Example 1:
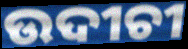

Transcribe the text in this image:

ଉଦୀଚୀ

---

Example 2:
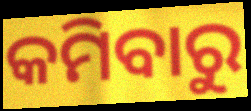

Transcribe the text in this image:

କମିବାରୁ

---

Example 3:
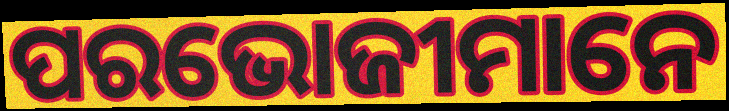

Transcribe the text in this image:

ପରଭୋଜୀମାନେ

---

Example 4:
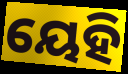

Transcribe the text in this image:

ୟେହି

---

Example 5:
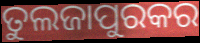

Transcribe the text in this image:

ତୁଲଜାପୁରକର